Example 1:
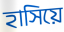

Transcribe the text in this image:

হাসিয়ে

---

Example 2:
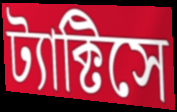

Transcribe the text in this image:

ট্যাক্টিসে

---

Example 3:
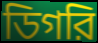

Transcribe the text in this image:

ডিগরি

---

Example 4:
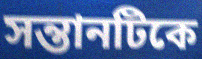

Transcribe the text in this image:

সন্তানটিকে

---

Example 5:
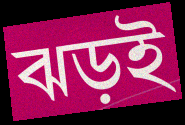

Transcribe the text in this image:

ঝড়ই